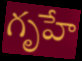
గృహే